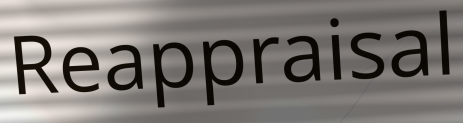
Reappraisal